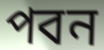
পবন